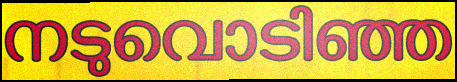
നടുവൊടിഞ്ഞ